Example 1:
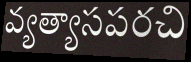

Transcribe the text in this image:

వ్యత్యాసపరచి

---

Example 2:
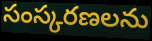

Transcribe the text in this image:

సంస్కరణలను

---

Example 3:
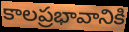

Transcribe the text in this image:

కాలప్రభావానికి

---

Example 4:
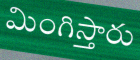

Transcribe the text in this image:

మింగిస్తారు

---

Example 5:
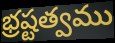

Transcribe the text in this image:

భ్రష్టత్వము